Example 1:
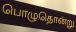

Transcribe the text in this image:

பொழுதொன்று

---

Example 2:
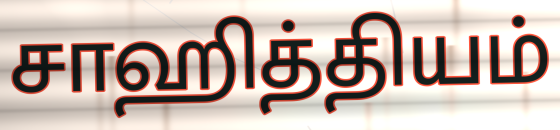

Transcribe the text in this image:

சாஹித்தியம்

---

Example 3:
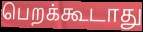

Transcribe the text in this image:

பெறக்கூடாது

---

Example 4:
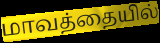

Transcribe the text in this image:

மாவத்தையில்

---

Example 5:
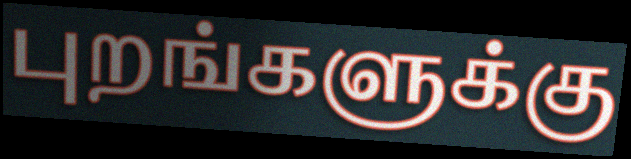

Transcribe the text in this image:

புறங்களுக்கு